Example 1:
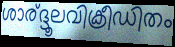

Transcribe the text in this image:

ശാര്ദ്ദൂലവിക്രീഡിതം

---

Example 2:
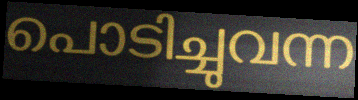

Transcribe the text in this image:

പൊടിച്ചുവന്ന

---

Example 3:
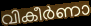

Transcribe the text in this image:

വികീർണാ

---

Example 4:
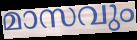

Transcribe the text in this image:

മാസവും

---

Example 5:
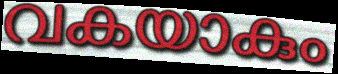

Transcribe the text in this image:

വകയാകും